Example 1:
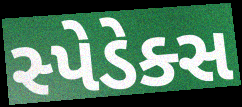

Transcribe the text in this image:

સ્પેડેક્સ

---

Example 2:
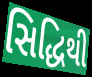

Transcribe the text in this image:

સિદ્ધિથી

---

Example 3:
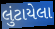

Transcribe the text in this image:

લુંટાયેલા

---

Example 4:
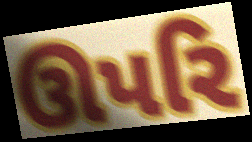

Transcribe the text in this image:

ઊપરિ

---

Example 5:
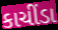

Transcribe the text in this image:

કાચીંડા